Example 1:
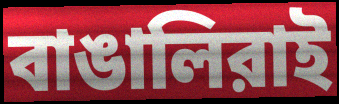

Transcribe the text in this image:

বাঙালিরাই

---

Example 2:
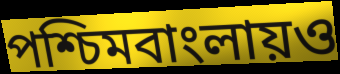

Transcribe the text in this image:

পশ্চিমবাংলায়ও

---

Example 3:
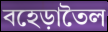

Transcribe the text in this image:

বহেড়াতৈল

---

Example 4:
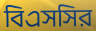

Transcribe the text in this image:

বিএসসির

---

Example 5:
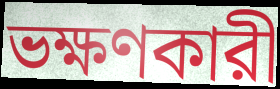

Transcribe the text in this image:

ভক্ষণকারী